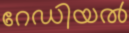
റേഡിയൽ